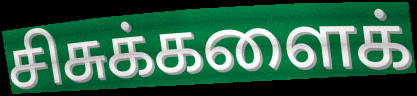
சிசுக்களைக்